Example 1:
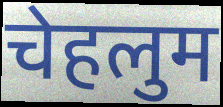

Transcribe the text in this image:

चेहलुम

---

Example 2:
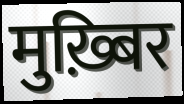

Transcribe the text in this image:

मुख़्बिर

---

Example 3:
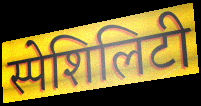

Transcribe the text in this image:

स्पेशिलिटी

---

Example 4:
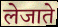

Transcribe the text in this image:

लेजाते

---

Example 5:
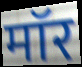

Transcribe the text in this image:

मॉर